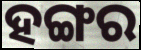
ହଙ୍ଗର